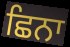
ਛਿਨਾ